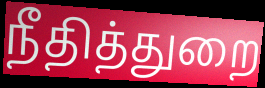
நீதித்துறை